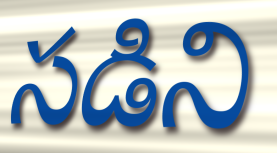
సడిని